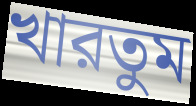
খারতুম